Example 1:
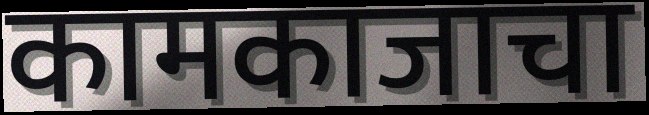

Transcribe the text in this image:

कामकाजाचा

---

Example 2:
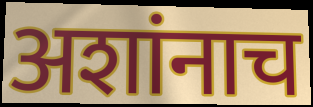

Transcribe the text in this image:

अशांनाच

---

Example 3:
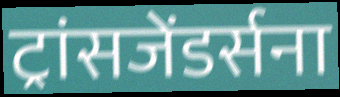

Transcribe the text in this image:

ट्रांसजेंडर्सना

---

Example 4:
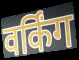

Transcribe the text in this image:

वर्किंग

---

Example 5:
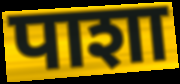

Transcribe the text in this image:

पाशा